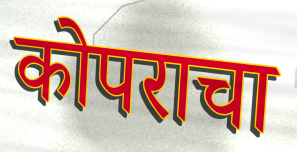
कोपराचा